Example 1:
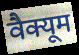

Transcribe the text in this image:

वैक्यूम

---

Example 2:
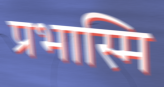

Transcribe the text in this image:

प्रभास्मि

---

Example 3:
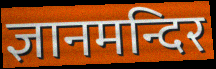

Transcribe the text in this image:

ज्ञानमन्दिर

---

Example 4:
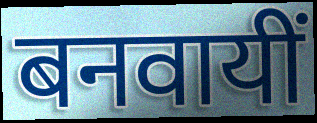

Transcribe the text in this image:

बनवायीं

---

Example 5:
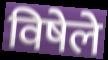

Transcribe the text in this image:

विषेले